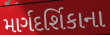
માર્ગદર્શિકાના